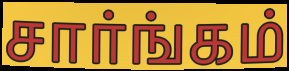
சார்ங்கம்